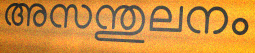
അസന്തുലനം